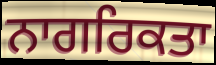
ਨਾਗਰਿਕਤਾ